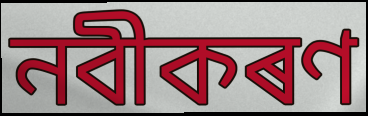
নবীকৰণ